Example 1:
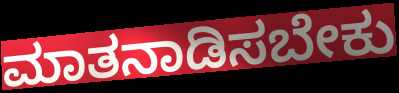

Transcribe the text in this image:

ಮಾತನಾಡಿಸಬೇಕು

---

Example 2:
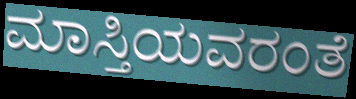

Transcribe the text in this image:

ಮಾಸ್ತಿಯವರಂತೆ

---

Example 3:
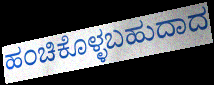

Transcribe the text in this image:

ಹಂಚಿಕೊಳ್ಳಬಹುದಾದ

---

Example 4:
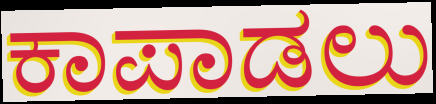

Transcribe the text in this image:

ಕಾಪಾಡಲು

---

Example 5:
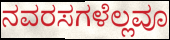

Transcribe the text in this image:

ನವರಸಗಳೆಲ್ಲವೂ